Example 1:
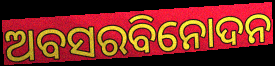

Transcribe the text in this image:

ଅବସରବିନୋଦନ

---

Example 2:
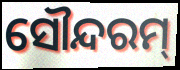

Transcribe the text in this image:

ସୌନ୍ଦରମ୍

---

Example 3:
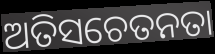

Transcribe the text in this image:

ଅତିସଚେତନତା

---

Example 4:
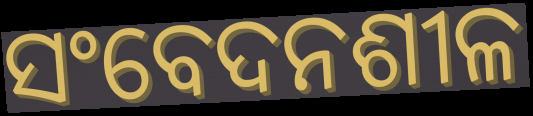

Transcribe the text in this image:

ସଂବେଦନଶୀଳ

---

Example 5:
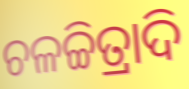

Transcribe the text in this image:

ଚଳଚ୍ଚିତ୍ରାଦି